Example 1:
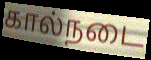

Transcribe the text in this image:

கால்நடை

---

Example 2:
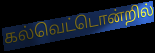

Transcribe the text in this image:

கல்வெட்டொன்றில்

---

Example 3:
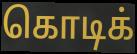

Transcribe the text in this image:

கொடிக்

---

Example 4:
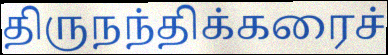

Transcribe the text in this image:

திருநந்திக்கரைச்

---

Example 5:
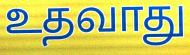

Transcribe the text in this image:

உதவாது